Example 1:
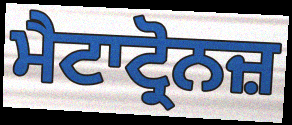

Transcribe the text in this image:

ਮੈਟਾਟ੍ਰੋਨਜ਼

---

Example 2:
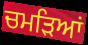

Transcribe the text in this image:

ਚਮੜਿਆਂ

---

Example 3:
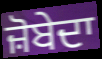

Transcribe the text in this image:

ਜ਼ੋਬੇਦਾ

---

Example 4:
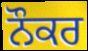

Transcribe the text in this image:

ਨੌਕਰ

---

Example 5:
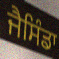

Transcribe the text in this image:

ਜੈਸਿੰਡਾ